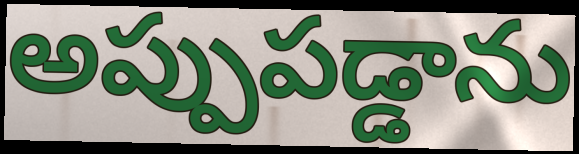
అప్పుపడ్డాను